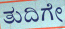
ತುದಿಗೇ